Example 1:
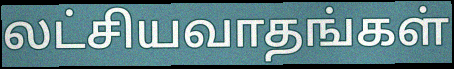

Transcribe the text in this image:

லட்சியவாதங்கள்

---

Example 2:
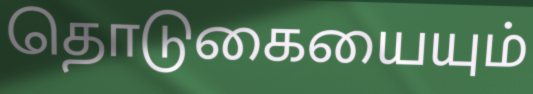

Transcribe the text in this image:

தொடுகையையும்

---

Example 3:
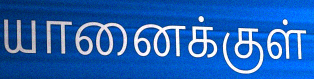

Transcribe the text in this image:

யானைக்குள்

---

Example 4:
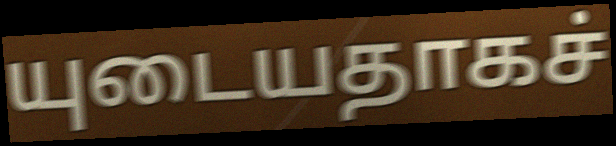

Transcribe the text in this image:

யுடையதாகச்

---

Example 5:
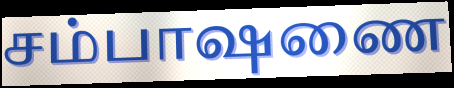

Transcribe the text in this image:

சம்பாஷணை